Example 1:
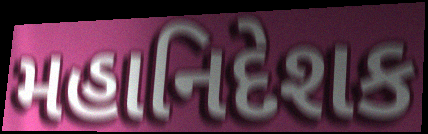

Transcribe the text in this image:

મહાનિદેશક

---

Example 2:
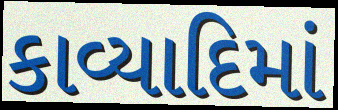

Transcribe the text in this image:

કાવ્યાદિમાં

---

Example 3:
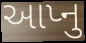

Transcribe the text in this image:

આપ્નુ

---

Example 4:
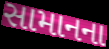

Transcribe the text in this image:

સામાનના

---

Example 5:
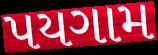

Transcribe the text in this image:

પયગામ